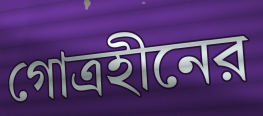
গোত্রহীনের